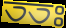
ততঃ